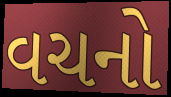
વચનો